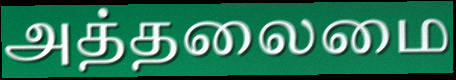
அத்தலைமை